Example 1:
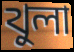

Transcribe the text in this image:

থুলা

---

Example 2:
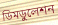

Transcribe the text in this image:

ডিমডুলেশন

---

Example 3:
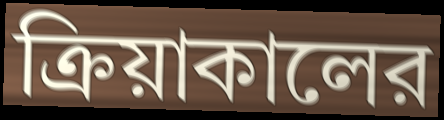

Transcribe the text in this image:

ক্রিয়াকালের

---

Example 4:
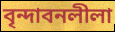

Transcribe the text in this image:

বৃন্দাবনলীলা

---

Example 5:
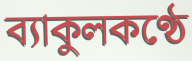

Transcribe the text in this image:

ব্যাকুলকণ্ঠে